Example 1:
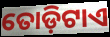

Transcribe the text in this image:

ତୋଡ଼ିଟାଏ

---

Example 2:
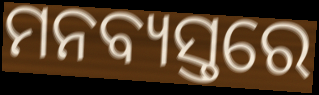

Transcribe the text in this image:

ମନବ୍ୟସ୍ତରେ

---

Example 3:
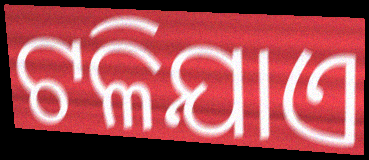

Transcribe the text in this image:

ଟଳିଯାଏ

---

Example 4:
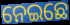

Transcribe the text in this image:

ନେଇଛେ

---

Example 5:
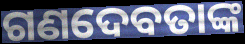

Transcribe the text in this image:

ଗଣଦେବତାଙ୍କ